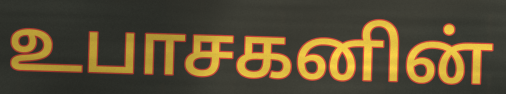
உபாசகனின்